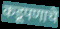
कडूपणाचे